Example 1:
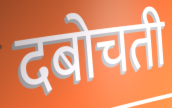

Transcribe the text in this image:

दबोचती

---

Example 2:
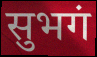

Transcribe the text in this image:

सुभगं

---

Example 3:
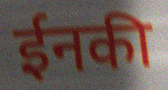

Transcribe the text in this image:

ईनकी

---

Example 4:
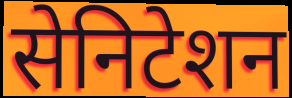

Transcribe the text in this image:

सेनिटेशन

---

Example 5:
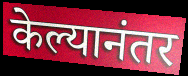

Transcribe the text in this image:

केल्यानंतर